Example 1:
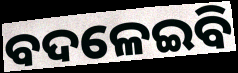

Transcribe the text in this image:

ବଦଳେଇବି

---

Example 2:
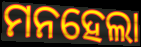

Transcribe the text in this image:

ମନହେଲା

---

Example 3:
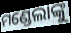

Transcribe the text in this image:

ମଣ୍ଡେଲାଙ୍କୁ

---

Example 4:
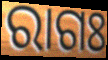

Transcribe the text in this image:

ରାଗଃ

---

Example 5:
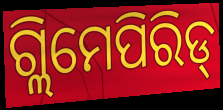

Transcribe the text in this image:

ଗ୍ଲିମେପିରିଡ୍